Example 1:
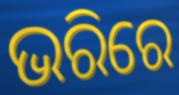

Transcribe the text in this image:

ଭରିରେ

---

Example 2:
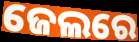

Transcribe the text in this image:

ଜେଲରେ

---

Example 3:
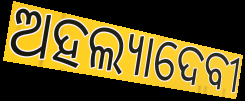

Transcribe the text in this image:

ଅହଲ୍ୟାଦେବୀ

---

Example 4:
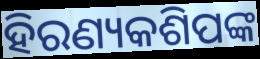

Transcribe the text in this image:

ହିରଣ୍ୟକଶିପଙ୍କ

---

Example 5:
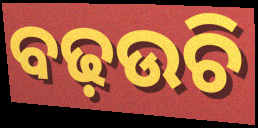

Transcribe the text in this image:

ବଢ଼ଉଚି